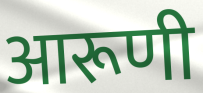
आरूणी